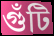
গুঁটি